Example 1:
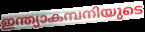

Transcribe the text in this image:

ഇന്ത്യാകമ്പനിയുടെ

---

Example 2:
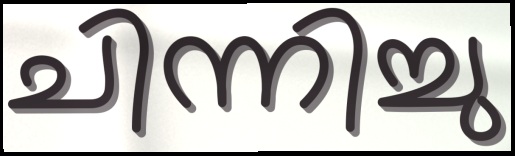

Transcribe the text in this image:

ചിന്നിച്ചു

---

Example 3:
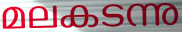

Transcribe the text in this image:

മലകടന്നു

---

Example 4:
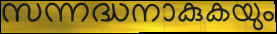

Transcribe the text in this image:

സന്നദ്ധനാകുകയും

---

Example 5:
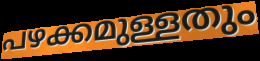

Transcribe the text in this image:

പഴക്കമുള്ളതും